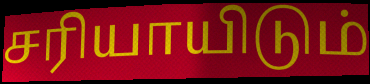
சரியாயிடும்